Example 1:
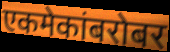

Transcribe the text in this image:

एकमेकांबरोबर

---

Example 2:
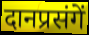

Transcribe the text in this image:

दानप्रसंगें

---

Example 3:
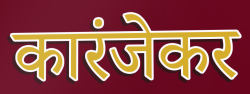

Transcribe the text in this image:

कारंजेकर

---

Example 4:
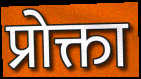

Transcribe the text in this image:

प्रोक्ता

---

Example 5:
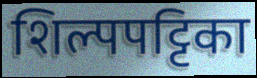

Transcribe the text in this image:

शिल्पपट्टिका